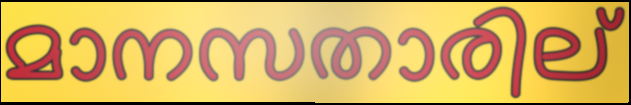
മാനസതാരില്